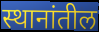
स्थानांतील